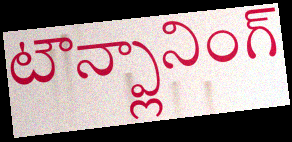
టౌన్ప్లానింగ్